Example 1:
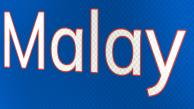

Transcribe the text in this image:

Malay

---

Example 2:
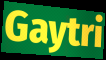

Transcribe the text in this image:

Gaytri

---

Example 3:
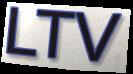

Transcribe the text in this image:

LTV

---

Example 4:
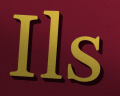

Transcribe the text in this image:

Ils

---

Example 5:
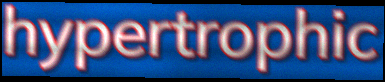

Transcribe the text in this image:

hypertrophic